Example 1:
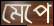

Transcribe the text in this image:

মেপে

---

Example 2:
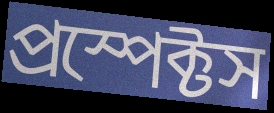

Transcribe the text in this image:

প্রস্পেক্টস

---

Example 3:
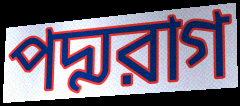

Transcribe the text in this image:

পদ্মরাগ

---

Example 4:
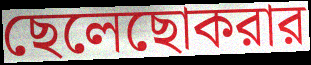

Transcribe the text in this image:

ছেলেছোকরার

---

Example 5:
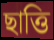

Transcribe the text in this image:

ছাত্তি